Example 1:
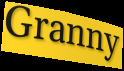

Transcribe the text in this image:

Granny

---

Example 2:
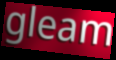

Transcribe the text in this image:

gleam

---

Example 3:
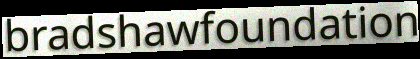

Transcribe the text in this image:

bradshawfoundation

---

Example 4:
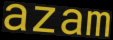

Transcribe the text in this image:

azam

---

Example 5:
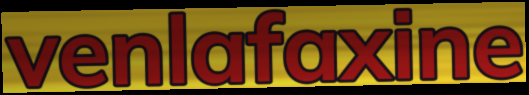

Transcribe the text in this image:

venlafaxine